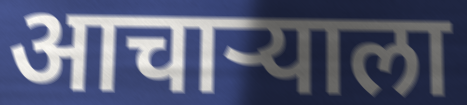
आचाऱ्याला